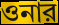
ওনার